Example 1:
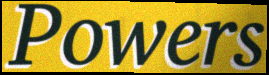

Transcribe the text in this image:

Powers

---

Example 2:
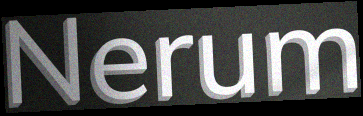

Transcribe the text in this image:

Nerum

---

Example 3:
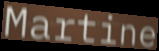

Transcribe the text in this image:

Martine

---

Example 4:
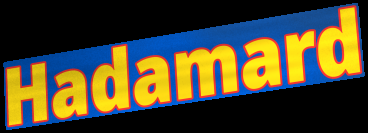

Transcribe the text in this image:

Hadamard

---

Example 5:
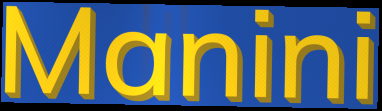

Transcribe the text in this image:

Manini